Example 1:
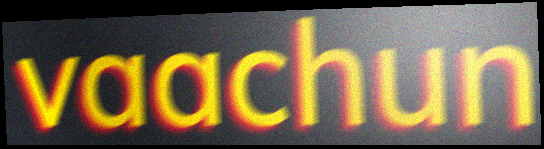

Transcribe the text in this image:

vaachun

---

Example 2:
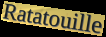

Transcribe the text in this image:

Ratatouille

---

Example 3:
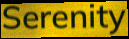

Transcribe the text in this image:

Serenity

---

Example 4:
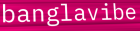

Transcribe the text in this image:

banglavibe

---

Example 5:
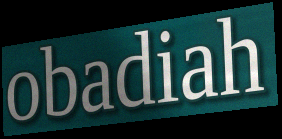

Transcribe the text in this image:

obadiah